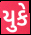
યુકે